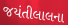
જયંતીલાલના